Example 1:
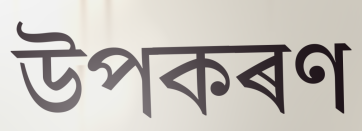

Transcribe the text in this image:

উপকৰণ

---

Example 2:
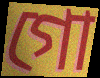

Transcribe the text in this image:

গো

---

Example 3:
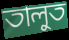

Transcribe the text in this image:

তালুত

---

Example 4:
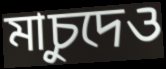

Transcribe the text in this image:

মাচুদেও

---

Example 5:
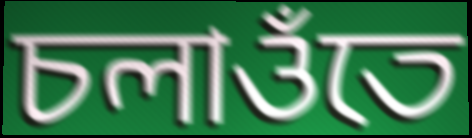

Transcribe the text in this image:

চলাওঁতে